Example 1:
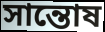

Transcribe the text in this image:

সান্তোষ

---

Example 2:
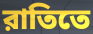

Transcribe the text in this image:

রাতিতে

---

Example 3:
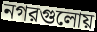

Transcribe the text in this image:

নগরগুলোয়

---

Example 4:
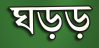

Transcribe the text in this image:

ঘড়ড়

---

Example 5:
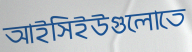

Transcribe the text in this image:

আইসিইউগুলোতে